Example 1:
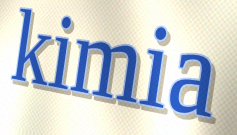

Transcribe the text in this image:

kimia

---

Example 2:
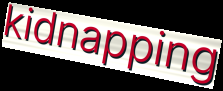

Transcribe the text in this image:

kidnapping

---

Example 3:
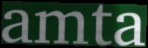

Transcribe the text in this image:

amta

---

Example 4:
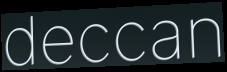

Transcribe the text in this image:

deccan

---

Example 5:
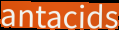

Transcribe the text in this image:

antacids